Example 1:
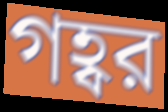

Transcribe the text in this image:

গহ্বর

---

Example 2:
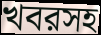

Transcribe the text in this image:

খবরসহ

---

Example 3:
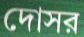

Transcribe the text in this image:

দোসর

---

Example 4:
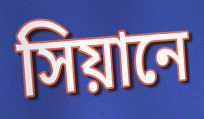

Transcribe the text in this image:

সিয়ানে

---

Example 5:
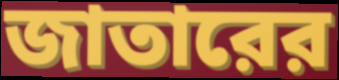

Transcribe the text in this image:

জাতারের